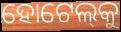
ହୋଟେଲ୍‌କୁ